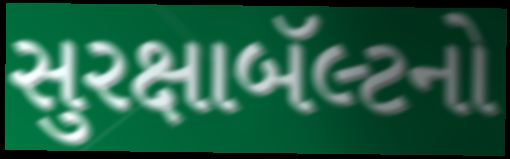
સુરક્ષાબૅલ્ટનો